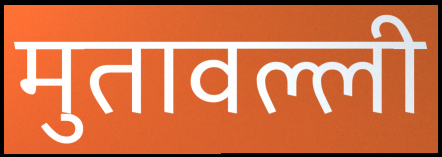
मुतावल्ली